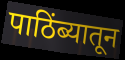
पाठिंब्यातून